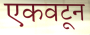
एकवटून